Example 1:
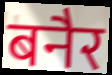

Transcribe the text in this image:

बनैर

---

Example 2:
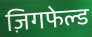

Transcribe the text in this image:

ज़िगफेल्ड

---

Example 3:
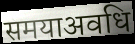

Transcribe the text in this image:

समयाअवधि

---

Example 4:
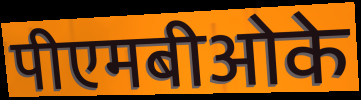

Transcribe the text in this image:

पीएमबीओके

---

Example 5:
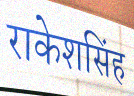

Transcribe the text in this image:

राकेशसिंह